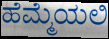
ಹೆಮ್ಮೆಯಲಿ